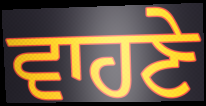
ਵਾਹਣੇ